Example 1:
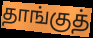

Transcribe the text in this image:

தாங்குத்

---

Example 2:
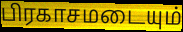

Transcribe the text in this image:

பிரகாசமடையும்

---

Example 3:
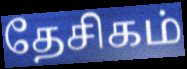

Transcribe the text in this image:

தேசிகம்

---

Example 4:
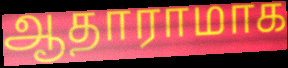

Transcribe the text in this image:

ஆதாராமாக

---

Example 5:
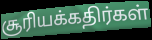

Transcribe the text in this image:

சூரியக்கதிர்கள்